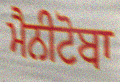
ਮੈਨੀਟੋਬਾ